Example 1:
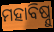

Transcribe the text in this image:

ମହାବିଷ୍ନୁ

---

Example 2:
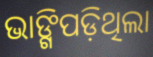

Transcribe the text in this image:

ଭାଙ୍ଗିପଡ଼ିଥିଲା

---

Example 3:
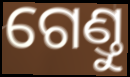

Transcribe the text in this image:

ଗେଣ୍ତୁ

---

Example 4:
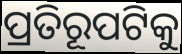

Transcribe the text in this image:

ପ୍ରତିରୂପଟିକୁ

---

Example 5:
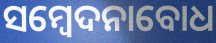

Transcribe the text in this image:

ସମ୍ବେଦନାବୋଧ